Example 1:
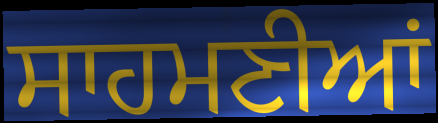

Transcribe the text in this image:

ਸਾਹਮਣੀਆਂ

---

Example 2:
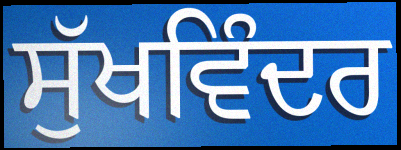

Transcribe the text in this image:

ਸੁੱਖਵਿੰਦਰ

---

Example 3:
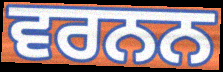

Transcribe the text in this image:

ਵਰਨਨ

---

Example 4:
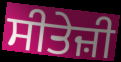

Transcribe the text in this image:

ਸੀਤੇਜ਼ੀ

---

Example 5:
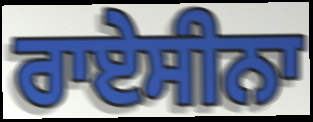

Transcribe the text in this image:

ਰਾਏਸੀਨਾ